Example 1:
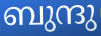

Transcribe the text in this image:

ബുന്ദു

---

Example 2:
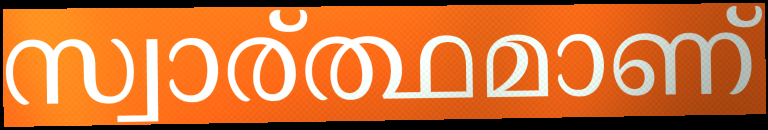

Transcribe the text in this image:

സ്വാര്ത്ഥമാണ്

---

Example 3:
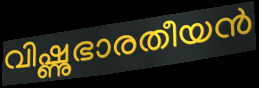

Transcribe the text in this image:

വിഷ്ണുഭാരതീയൻ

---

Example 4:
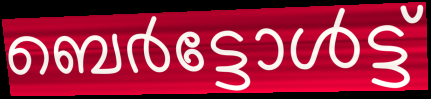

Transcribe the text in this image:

ബെർട്ടോൾട്ട്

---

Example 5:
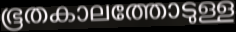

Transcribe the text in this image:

ഭൂതകാലത്തോടുള്ള